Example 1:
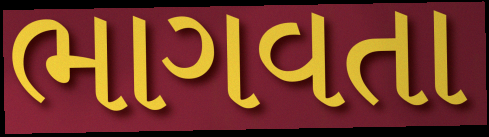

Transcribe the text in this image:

ભાગવતા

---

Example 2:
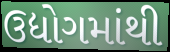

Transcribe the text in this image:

ઉદ્યોગમાંથી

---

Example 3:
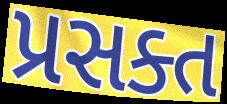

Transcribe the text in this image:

પ્રસક્ત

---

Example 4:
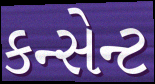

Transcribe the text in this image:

કન્સેન્ટ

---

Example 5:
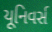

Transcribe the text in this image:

યૂનિવર્સ